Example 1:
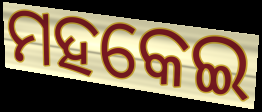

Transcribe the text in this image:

ମହକେଇ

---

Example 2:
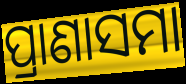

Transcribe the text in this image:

ପ୍ରାଣାସମା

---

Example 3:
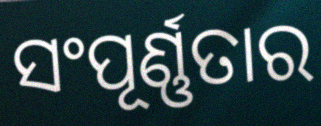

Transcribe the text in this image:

ସଂପୂର୍ଣ୍ଣତାର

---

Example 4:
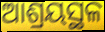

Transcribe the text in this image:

ଆଶ୍ରୟସ୍ଥଳ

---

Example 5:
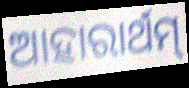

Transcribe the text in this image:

ଆହାରାର୍ଥମ୍